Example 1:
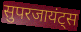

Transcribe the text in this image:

सुपरजायंट्स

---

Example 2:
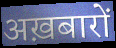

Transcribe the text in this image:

अख़बारों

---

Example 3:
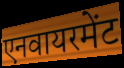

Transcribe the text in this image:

एनवायरमेंट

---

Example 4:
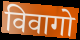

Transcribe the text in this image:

विवागो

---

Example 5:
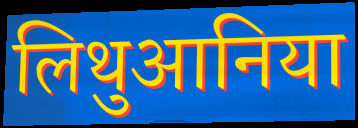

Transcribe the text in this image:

लिथुआनिया